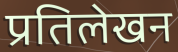
प्रतिलेखन